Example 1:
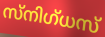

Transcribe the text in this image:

സ്നിഗ്ധസ്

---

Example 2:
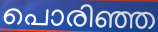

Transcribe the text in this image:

പൊരിഞ്ഞ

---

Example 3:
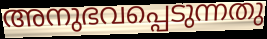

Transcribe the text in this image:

അനുഭവപ്പെടുന്നതു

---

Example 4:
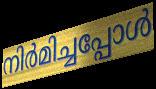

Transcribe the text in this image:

നിർമിച്ചപ്പോൾ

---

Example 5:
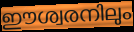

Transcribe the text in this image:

ഈശ്വരനിലും